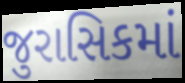
જુરાસિકમાં